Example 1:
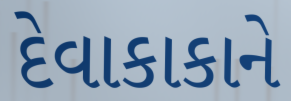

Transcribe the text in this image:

દેવાકાકાને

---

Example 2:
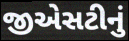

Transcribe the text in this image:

જીએસટીનું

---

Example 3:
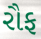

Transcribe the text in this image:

રૌફ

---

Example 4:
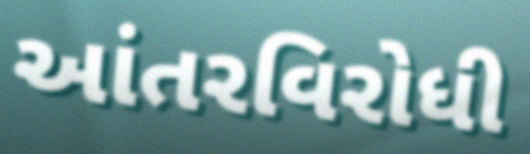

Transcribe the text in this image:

આંતરવિરોધી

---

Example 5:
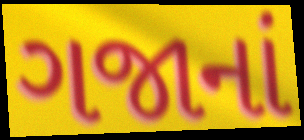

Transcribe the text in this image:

ગજાનાં